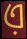
ଏ଼